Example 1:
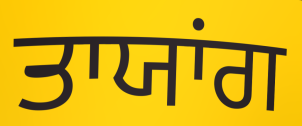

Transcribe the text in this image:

ਤਾਯਾਂਗ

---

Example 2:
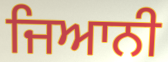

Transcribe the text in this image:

ਜਿਆਨੀ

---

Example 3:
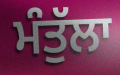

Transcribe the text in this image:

ਮੰਤੁੱਲਾ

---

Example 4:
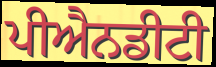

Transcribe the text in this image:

ਪੀਐਨਡੀਟੀ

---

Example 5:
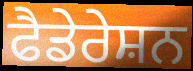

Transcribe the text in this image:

ਫੈਡੇਰੇਸ਼ਨ